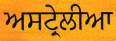
ਅਸਟ੍ਰੇਲੀਆ